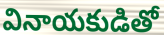
వినాయకుడితో